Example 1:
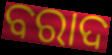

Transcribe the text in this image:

ବରାଦ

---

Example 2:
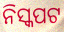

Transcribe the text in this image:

ନିସ୍କପଟ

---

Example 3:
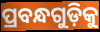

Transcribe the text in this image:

ପ୍ରବନ୍ଧଗୁଡ଼ିକୁ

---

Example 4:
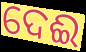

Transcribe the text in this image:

ଦେଈ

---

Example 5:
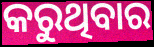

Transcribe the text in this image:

କରୁଥିବାର